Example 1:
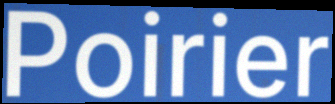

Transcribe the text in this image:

Poirier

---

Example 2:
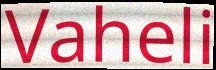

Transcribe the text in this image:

Vaheli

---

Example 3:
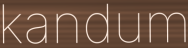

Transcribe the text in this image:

kandum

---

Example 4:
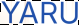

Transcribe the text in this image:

YARU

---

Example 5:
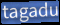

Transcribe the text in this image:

tagadu